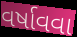
વર્ષાવવા